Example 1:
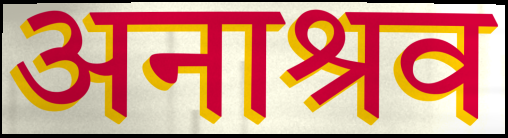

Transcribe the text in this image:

अनाश्रव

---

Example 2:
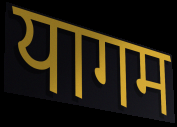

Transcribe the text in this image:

यागम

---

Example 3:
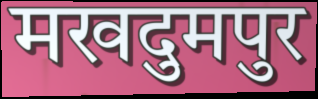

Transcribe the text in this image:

मखदुमपुर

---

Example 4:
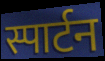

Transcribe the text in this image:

स्पार्टन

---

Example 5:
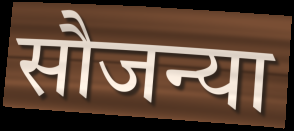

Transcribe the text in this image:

सौजन्या